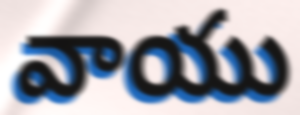
వాయు